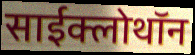
साईक्लोथॉन